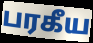
பரகீய